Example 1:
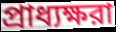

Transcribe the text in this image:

প্রাধ্যক্ষরা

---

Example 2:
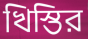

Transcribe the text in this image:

খিস্তির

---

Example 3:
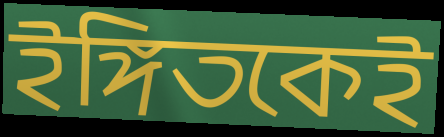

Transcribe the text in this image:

ইঙ্গিতকেই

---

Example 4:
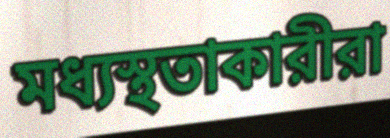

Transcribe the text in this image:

মধ্যস্থতাকারীরা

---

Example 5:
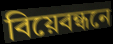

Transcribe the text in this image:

বিয়েবন্ধনে